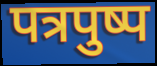
पत्रपुष्प